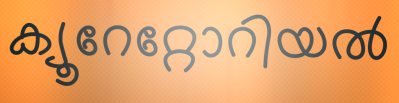
ക്യൂറേറ്റോറിയൽ